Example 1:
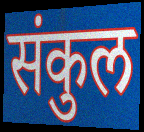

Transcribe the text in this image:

संकुल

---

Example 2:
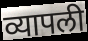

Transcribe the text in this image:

व्यापली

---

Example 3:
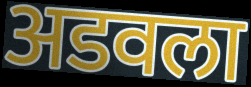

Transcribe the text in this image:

अडवला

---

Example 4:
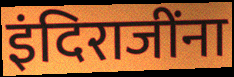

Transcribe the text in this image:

इंदिराजींना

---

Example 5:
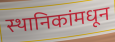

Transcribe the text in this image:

स्थानिकांमधून